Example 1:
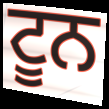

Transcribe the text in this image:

ਟੂਨ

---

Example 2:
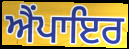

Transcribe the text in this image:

ਐੰਪਾਇਰ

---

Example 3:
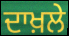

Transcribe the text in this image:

ਦਾਖ਼ਲੇ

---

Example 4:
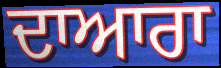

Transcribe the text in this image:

ਦਾਆਰਾ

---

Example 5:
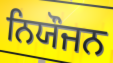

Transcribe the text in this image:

ਨਿਯੌਜਨ